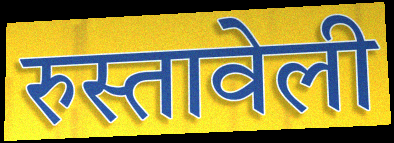
रुस्तावेली